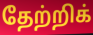
தேற்றிக்